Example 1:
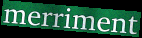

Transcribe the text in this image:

merriment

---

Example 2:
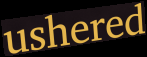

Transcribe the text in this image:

ushered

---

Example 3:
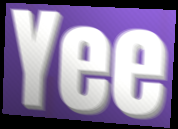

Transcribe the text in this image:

Yee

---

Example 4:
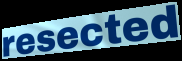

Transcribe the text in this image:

resected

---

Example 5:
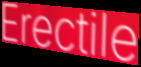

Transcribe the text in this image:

Erectile